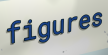
figures